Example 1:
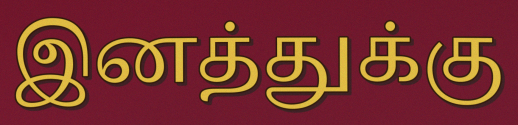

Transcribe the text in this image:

இனத்துக்கு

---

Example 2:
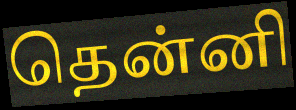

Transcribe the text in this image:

தென்னி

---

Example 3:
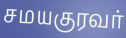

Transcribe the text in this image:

சமயகுரவர்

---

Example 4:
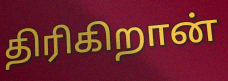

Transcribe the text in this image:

திரிகிறான்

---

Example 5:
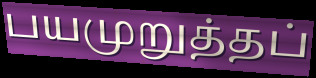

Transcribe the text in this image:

பயமுறுத்தப்